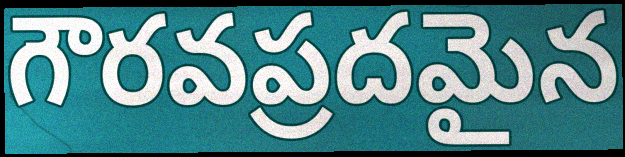
గౌరవప్రదమైన